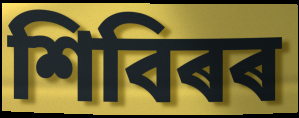
শিবিৰৰ